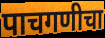
पाचगणीचा